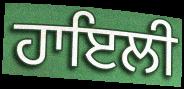
ਹਾਇਲੀ